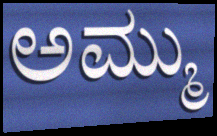
ಅಮ್ಮು